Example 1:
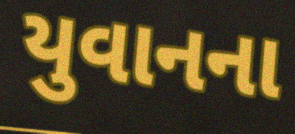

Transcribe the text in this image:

યુવાનના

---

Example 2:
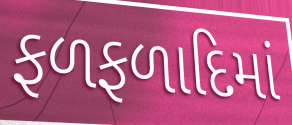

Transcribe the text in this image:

ફળફળાદિમાં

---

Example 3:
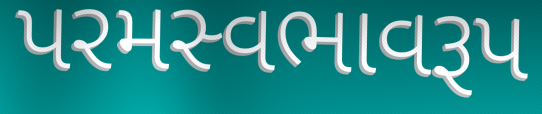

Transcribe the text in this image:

પરમસ્વભાવરૂપ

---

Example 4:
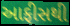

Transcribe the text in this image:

આફીસથી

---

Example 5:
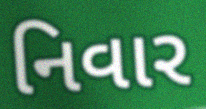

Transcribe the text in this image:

નિવાર